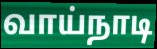
வாய்நாடி